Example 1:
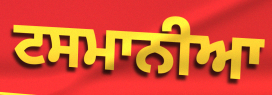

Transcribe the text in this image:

ਟਸਮਾਨੀਆ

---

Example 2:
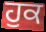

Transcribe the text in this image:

ਹੁਕ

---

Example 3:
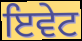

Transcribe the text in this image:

ਇਵੇਟ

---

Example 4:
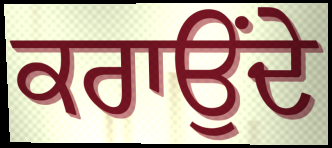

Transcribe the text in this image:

ਕਰਾਉਂਦੇ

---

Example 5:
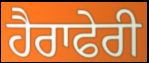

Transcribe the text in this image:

ਹੈਰਾਫੇਰੀ